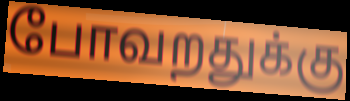
போவறதுக்கு